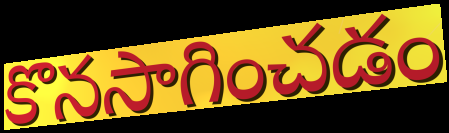
కొనసాగించడం